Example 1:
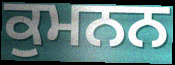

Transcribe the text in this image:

ਕੁਮਨਨ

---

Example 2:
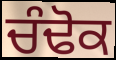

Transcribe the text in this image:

ਚੰਢੋਕ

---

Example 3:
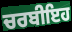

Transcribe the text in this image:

ਚਰਬੀਇਹ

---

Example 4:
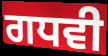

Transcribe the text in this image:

ਗਧਵੀ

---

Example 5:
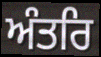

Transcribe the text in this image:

ਅੰਤਰਿ